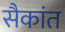
सैकांत